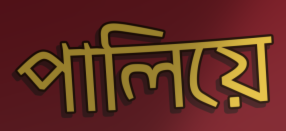
পালিয়ে